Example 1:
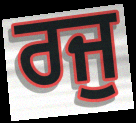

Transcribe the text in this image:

ਰਜੁ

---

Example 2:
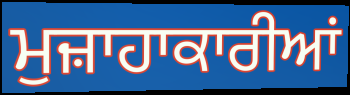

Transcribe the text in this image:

ਮੁਜ਼ਾਹਾਕਾਰੀਆਂ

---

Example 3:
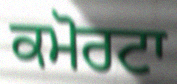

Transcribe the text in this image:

ਕਮੋਰਟਾ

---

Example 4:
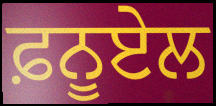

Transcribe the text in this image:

ਫ਼ਨੂਏਲ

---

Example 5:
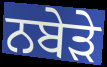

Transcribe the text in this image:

ਨਬੇੜੇ